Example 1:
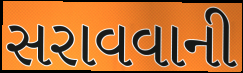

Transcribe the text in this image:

સરાવવાની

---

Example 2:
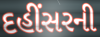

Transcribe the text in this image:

દહીંસરની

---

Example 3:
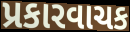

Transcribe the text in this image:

પ્રકારવાચક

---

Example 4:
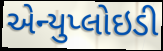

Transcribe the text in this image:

એન્યુપ્લોઇડી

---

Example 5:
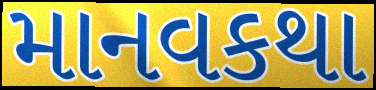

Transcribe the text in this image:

માનવકથા